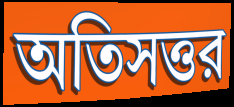
অতিসত্তর